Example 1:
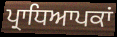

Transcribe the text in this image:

ਪ੍ਰਾਧਿਆਪਕਾਂ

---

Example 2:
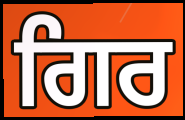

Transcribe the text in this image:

ਗਿਰ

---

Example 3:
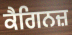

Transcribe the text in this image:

ਕੈਗਿਨਜ਼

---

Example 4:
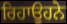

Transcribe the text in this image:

ਰਿਹਾਉਹਨੇ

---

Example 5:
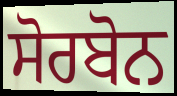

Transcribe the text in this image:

ਸੋਰਬੋਨ